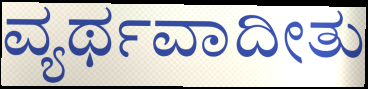
ವ್ಯರ್ಥವಾದೀತು